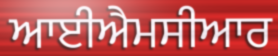
ਆਈਐਮਸੀਆਰ